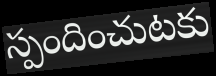
స్పందించుటకు